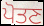
ਪੋਤਣ